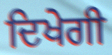
ਦਿਖੇਗੀ